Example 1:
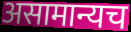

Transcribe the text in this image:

असामान्यच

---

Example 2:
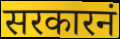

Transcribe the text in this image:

सरकारनं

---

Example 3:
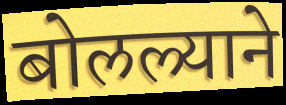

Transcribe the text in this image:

बोलल्याने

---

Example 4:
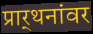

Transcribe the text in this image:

प्रार्थनांवर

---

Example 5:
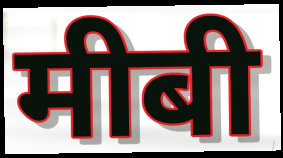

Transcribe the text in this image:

मीबी